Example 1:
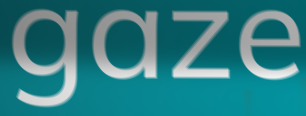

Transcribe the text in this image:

gaze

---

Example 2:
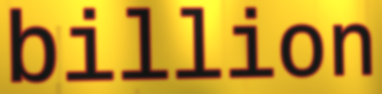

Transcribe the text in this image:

billion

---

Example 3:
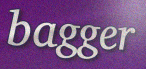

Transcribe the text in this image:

bagger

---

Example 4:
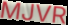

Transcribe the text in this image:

MJVR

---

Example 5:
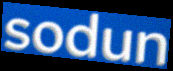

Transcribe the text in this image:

sodun